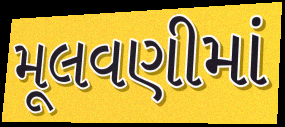
મૂલવણીમાં